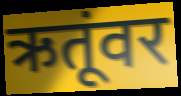
ऋतूंवर